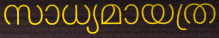
സാധ്യമായത്ര